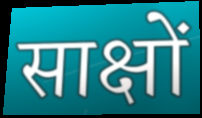
साक्षों